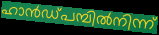
ഹാൻഡ്പമ്പിൽനിന്ന്